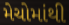
મેચોમાંથી